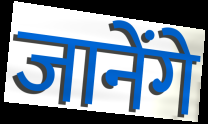
जानेंगे